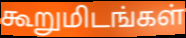
கூறுமிடங்கள்